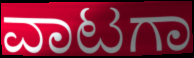
ವಾಟಗಾ